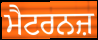
ਮੈਟਰਨਜ਼